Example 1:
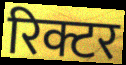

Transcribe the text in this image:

रिक्टर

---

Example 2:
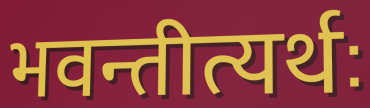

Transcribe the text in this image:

भवन्तीत्यर्थः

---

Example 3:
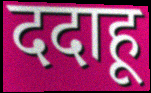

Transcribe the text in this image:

ददाहू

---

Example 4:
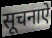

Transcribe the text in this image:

सूचनाऐ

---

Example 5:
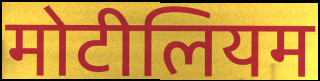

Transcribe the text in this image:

मोटीलियम